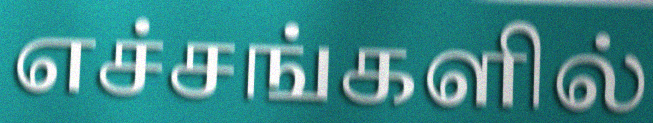
எச்சங்களில்